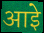
आइे